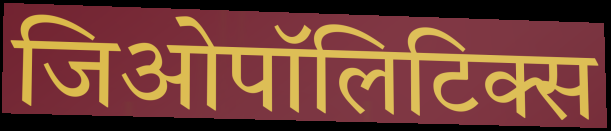
जिओपॉलिटिक्स